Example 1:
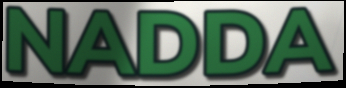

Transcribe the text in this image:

NADDA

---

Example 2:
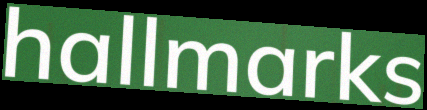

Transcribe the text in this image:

hallmarks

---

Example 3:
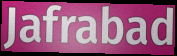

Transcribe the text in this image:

Jafrabad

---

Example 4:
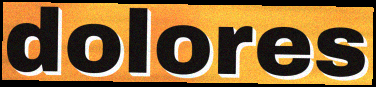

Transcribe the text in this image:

dolores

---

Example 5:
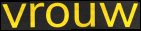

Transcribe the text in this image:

vrouw